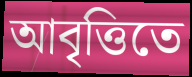
আবৃত্তিতে